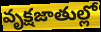
వృక్షజాతుల్లో